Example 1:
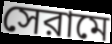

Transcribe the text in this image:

সেরামে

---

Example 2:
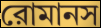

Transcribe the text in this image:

রোমানস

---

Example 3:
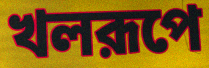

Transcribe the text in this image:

খলরূপে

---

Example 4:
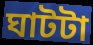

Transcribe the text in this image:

ঘাটটা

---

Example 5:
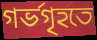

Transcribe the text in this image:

গর্ভগৃহতে